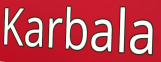
Karbala